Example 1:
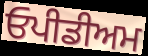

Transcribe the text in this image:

ਓਪੀਡੀਅਮ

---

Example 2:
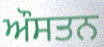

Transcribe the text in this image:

ਔਸਤਨ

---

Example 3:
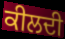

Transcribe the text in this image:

ਕੀਲਦੀ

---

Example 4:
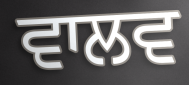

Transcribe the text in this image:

ਵਾਲਵ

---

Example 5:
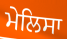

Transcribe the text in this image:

ਮੇਲਿਸਾ